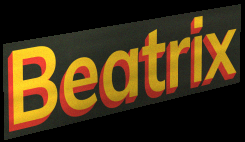
Beatrix